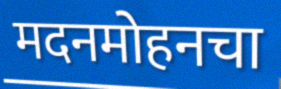
मदनमोहनचा